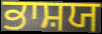
ਭਾਸ਼ਯ